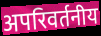
अपरिवर्तनीय